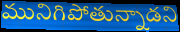
మునిగిపోతున్నాడని